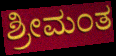
ಶ್ರೀಮಂತ